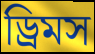
ড্রিমস